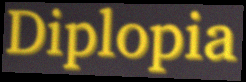
Diplopia